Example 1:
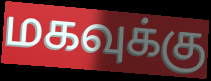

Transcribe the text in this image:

மகவுக்கு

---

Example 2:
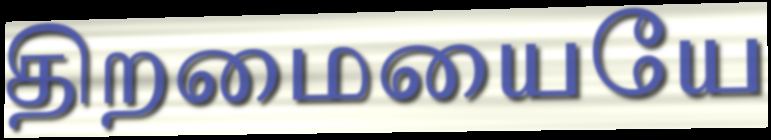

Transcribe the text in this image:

திறமையையே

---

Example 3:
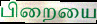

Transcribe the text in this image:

பிறையை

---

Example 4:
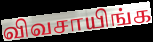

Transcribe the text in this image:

விவசாயிங்க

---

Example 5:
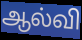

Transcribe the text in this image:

ஆல்வி